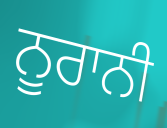
ਨੂਰਾਨੀ